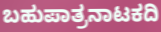
ಬಹುಪಾತ್ರನಾಟಕದಿ